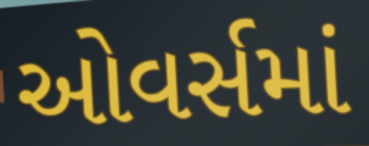
ઓવર્સમાં